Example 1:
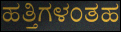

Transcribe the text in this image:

ಹತ್ತಿಗಳಂತಹ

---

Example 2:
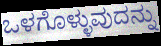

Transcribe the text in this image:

ಒಳಗೊಳ್ಳುವುದನ್ನು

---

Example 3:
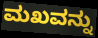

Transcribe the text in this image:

ಮಖವನ್ನು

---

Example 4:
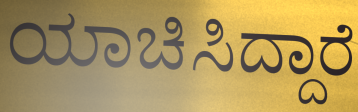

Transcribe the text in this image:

ಯಾಚಿಸಿದ್ದಾರೆ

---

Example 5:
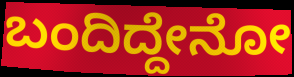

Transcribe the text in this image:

ಬಂದಿದ್ದೇನೋ